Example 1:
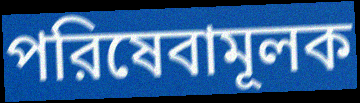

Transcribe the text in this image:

পরিষেবামূলক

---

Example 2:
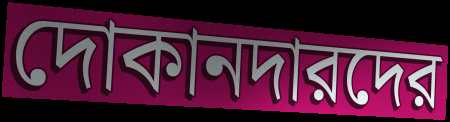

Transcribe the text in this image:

দোকানদারদের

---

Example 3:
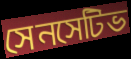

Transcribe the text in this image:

সেনসেটিভ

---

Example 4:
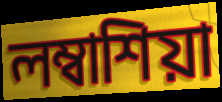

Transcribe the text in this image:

লম্বাশিয়া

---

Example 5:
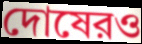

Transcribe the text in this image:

দোষেরও